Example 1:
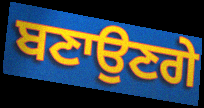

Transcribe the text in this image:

ਬਣਾਉਣਗੇ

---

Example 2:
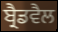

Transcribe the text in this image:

ਬ੍ਰੈਡਵੈਲ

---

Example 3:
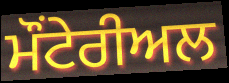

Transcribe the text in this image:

ਮੌਂਟੇਰੀਅਲ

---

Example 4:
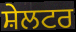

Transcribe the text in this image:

ਸ਼ੇਲਟਰ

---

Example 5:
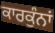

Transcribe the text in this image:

ਕਾਰਕੁੰਨਾਂ